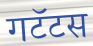
गटॅटस